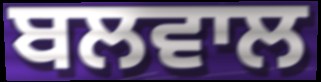
ਬਲਵਾਲ